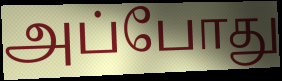
அப்போது